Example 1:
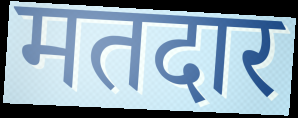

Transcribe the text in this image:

मतदार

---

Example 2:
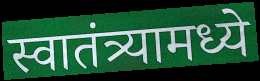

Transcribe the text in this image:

स्वातंत्र्यामध्ये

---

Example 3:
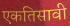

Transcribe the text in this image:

एकतिसावी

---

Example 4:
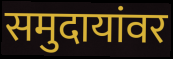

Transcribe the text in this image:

समुदायांवर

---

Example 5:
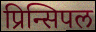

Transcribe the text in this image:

प्रिन्सिपल